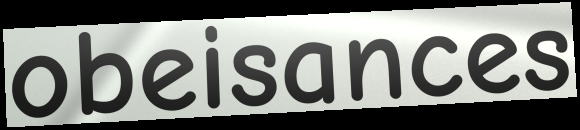
obeisances